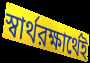
স্বার্থরক্ষার্থেই